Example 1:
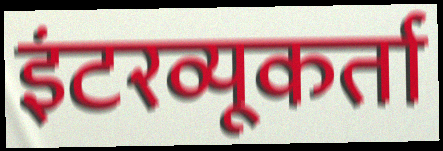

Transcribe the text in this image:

इंटरव्यूकर्ता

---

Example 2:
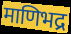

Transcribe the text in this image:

माणिभद्र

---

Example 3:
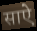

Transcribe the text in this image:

साऐ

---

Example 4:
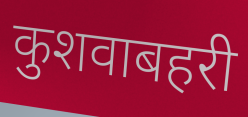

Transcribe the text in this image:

कुशवाबहरी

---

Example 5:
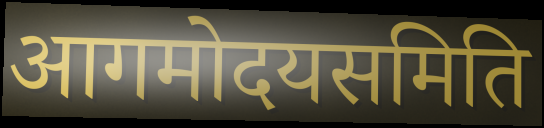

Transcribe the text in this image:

आगमोदयसमिति